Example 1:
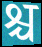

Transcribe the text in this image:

श्च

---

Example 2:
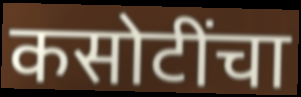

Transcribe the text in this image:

कसोटींचा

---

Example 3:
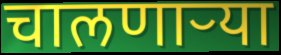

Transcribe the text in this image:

चालणाऱ्या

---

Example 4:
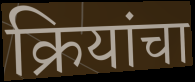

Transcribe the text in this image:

क्रियांचा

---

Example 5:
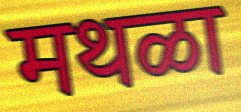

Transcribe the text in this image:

मथळा